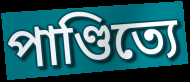
পাণ্ডিত্যে